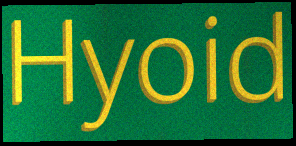
Hyoid